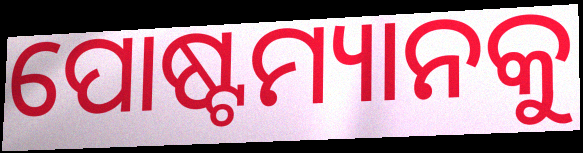
ପୋଷ୍ଟମ୍ୟାନକୁ